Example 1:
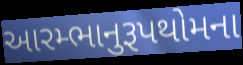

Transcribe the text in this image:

આરમ્ભાનુરૂપથોમના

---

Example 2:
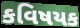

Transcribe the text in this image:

કવિષયક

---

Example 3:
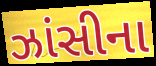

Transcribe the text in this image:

ઝાંસીના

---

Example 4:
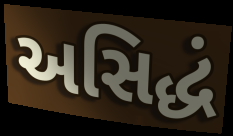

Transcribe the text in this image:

અસિદ્ધં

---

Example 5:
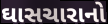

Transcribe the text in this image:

ઘાસચારાનો